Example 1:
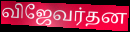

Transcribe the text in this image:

விஜேவர்தன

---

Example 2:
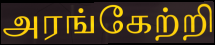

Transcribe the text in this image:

அரங்கேற்றி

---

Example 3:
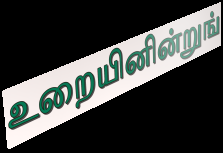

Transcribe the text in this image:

உறையினின்றுங்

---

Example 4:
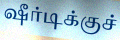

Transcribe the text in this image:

ஷீர்டிக்குச்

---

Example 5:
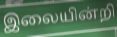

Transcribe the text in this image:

இலையின்றி